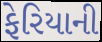
ફેરિયાની